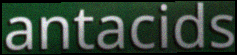
antacids